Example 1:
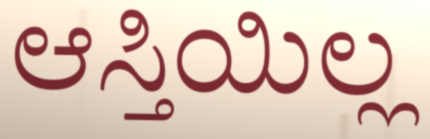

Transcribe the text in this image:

ಆಸ್ತಿಯಿಲ್ಲ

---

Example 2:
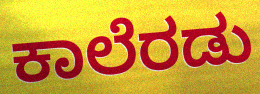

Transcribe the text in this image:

ಕಾಲೆರಡು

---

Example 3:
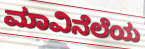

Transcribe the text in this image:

ಮಾವಿನೆಲೆಯ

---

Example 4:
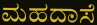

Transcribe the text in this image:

ಮಹದಾಸೆ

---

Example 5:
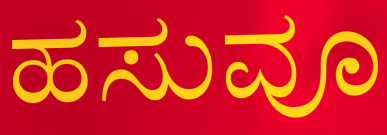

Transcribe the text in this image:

ಹಸುವೂ